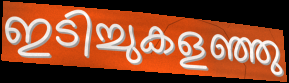
ഇടിച്ചുകളഞ്ഞു